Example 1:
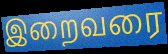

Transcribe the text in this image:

இறைவரை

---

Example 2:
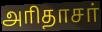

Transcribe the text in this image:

அரிதாசர்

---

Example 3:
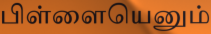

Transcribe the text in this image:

பிள்ளையெனும்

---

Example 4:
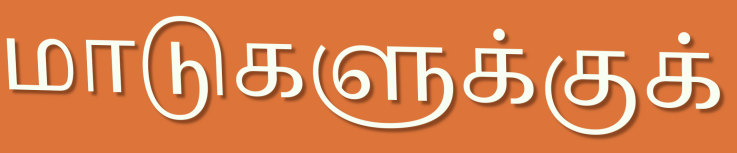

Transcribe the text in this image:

மாடுகளுக்குக்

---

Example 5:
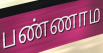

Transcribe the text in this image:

பண்ணாம